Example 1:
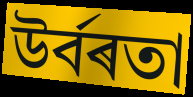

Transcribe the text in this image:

উৰ্বৰতা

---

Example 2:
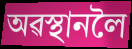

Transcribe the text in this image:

অৱস্থানলৈ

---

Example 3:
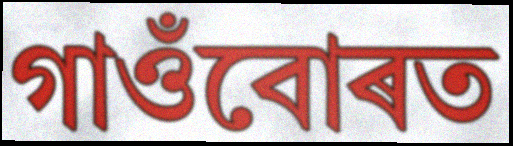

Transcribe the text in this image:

গাওঁবোৰত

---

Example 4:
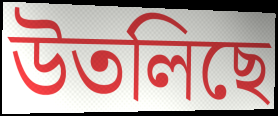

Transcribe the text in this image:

উতলিছে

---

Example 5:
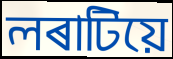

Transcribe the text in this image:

লৰাটিয়ে